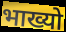
भाख्यो